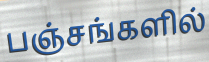
பஞ்சங்களில்